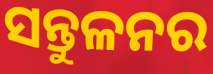
ସନ୍ତୁଳନର